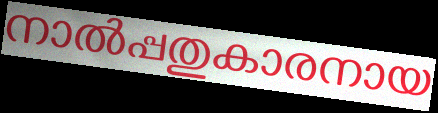
നാൽപ്പതുകാരനായ